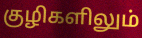
குழிகளிலும்